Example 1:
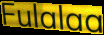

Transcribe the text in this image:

Fulalaa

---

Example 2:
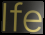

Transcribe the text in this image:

Ife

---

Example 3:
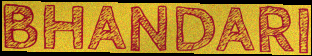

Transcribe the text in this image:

BHANDARI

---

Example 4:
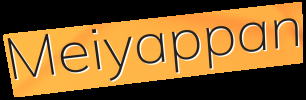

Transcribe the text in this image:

Meiyappan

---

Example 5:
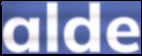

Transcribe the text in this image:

alde